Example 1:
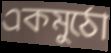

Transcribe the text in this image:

একমুঠো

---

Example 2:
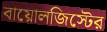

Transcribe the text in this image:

বায়োলজিস্টের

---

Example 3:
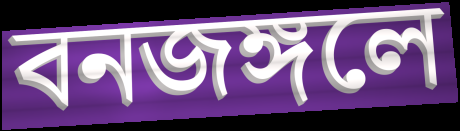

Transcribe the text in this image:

বনজঙ্গলে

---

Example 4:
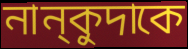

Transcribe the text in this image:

নান্‌কুদাকে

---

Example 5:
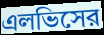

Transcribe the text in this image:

এলভিসের